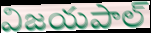
విజయపాల్